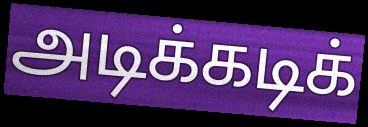
அடிக்கடிக்